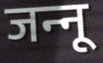
जन्नू